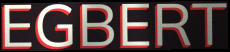
EGBERT